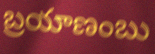
బ్రయాణంబు